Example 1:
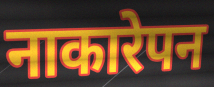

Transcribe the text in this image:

नाकारेपन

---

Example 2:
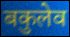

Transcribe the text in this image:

बकुलेव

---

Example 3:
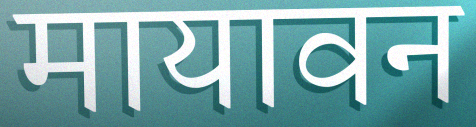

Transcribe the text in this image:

मायावन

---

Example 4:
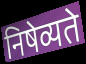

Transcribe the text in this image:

निषेव्यते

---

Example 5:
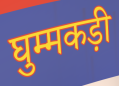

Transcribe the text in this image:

घुम्मकड़ी